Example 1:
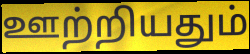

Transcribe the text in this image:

ஊற்றியதும்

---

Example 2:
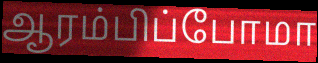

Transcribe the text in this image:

ஆரம்பிப்போமா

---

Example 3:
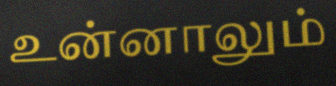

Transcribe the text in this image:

உன்னாலும்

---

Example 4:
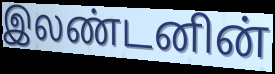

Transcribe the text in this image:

இலண்டனின்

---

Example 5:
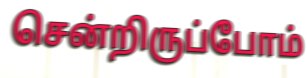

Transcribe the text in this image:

சென்றிருப்போம்